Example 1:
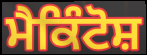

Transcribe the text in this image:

ਮੈਕਿੰਟੋਸ਼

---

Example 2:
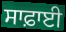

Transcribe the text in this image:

ਸਾਫ਼ਾਈ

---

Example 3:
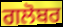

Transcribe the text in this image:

ਗਲੋਬਰ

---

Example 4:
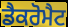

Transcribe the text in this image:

ਡੈਕਰੋਮੈਟ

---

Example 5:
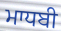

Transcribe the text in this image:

ਮਾਧਬੀ